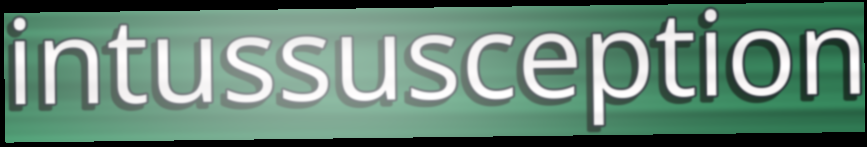
intussusception